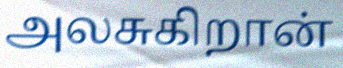
அலசுகிறான்